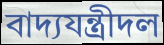
বাদ্যযন্ত্রীদল